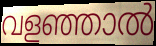
വളഞ്ഞാൽ